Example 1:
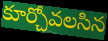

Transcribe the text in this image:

కూర్చోవలసిన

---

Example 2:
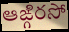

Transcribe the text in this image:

ఆఙ్గిరసో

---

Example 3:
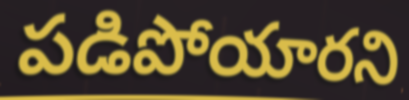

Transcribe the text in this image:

పడిపోయారని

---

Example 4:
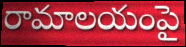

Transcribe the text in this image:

రామాలయంపై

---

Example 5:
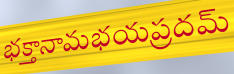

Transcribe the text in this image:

భక్తానామభయప్రదమ్